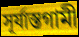
সূর্যাস্তগামী